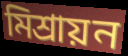
মিশ্রায়ন